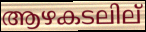
ആഴകടലില്